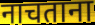
नाचताना